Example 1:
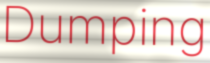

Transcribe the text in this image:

Dumping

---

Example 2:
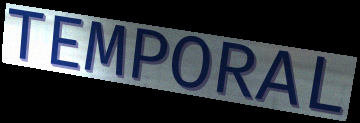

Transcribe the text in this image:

TEMPORAL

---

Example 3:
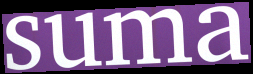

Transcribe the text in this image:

suma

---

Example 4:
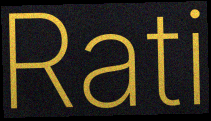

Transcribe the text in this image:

Rati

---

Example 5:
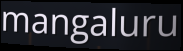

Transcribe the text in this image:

mangaluru